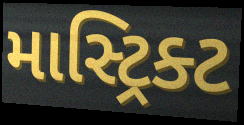
માસ્ટ્રિક્ટ